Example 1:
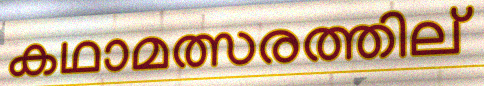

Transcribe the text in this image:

കഥാമത്സരത്തില്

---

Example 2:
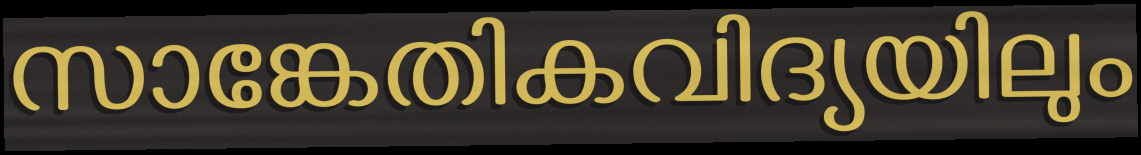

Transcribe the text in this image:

സാങ്കേതികവിദ്യയിലും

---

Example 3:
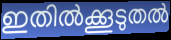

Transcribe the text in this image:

ഇതിൽക്കൂടുതൽ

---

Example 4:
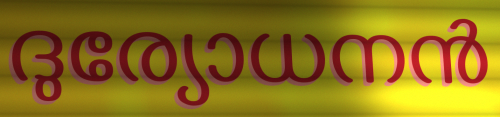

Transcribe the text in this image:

ദുര്യോധനൻ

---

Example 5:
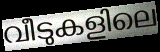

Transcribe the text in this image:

വീടുകളിലെ